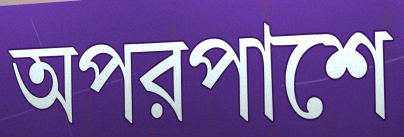
অপরপাশে